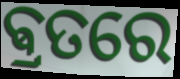
ଵ୍ରତରେ